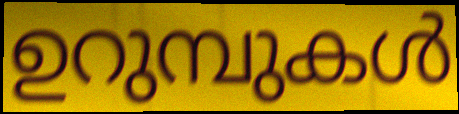
ഉറുമ്പുകൾ